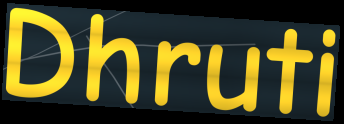
Dhruti